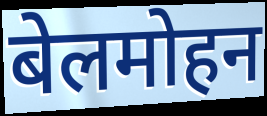
बेलमोहन